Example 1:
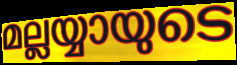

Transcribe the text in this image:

മല്ലയ്യായുടെ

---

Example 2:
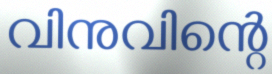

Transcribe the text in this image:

വിനുവിന്റെ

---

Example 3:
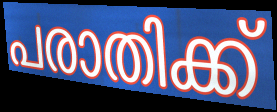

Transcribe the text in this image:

പരാതിക്ക്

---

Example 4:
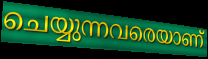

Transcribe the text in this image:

ചെയ്യുന്നവരെയാണ്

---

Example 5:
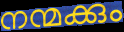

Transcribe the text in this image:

നന്മക്കും